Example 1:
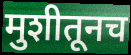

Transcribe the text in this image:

मुशीतूनच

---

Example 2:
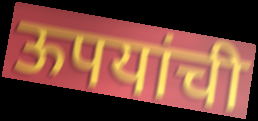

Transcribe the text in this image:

ऊपयांची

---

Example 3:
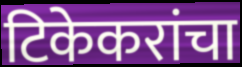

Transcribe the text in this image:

टिकेकरांचा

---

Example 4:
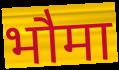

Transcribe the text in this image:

भौमा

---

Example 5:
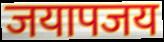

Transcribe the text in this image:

जयापजय